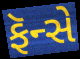
ફૅન્સે